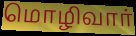
மொழிவார்